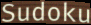
Sudoku